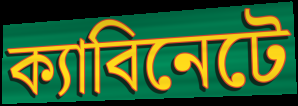
ক্যাবিনেটে